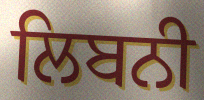
ਲਿਬਨੀ